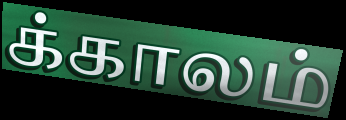
க்காலம்